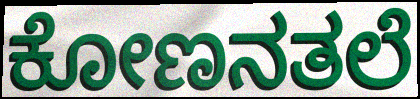
ಕೋಣನತಲೆ